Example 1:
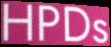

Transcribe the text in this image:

HPDs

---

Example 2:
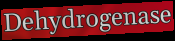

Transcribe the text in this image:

Dehydrogenase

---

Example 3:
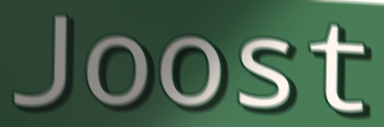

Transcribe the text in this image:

Joost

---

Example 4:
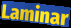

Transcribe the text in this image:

Laminar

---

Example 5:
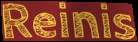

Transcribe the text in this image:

Reinis